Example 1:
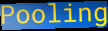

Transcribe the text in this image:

Pooling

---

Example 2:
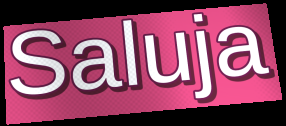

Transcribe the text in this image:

Saluja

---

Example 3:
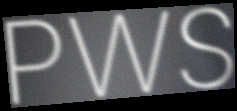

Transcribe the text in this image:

PWS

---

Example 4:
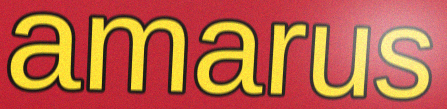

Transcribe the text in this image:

amarus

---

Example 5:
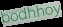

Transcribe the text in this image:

bodhhoy